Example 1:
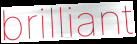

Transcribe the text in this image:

brilliant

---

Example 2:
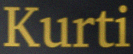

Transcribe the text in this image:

Kurti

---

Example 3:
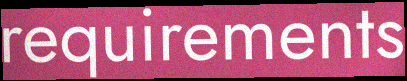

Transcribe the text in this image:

requirements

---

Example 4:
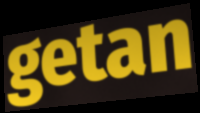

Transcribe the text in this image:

getan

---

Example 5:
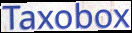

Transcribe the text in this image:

Taxobox